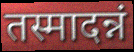
तस्मादन्नं